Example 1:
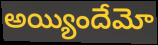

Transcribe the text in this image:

అయ్యిందేమో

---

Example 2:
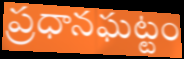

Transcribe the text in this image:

ప్రధానఘట్టం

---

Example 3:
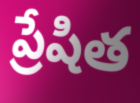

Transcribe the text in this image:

ప్రేషిత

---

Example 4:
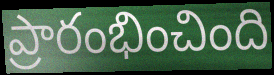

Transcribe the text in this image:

ప్రారంభించింది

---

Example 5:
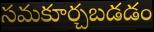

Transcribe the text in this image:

సమకూర్చబడడం